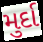
મુર્દા